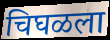
चिघळला